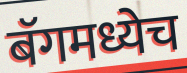
बॅगमध्येच